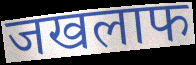
जखलाफ